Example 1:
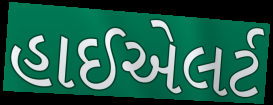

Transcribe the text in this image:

હાઈએલર્ટ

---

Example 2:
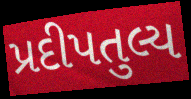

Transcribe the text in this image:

પ્રદીપતુલ્ય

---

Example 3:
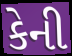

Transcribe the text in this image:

કેની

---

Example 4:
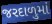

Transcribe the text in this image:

જરદાળુમાં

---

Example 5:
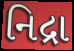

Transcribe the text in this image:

નિદ્રા